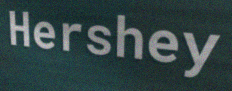
Hershey